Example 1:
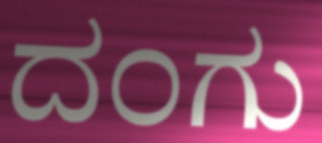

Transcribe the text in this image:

ದಂಗು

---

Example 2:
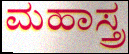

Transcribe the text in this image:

ಮಹಾಸ್ತ್ರ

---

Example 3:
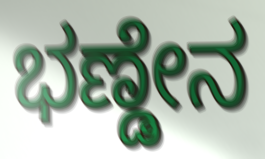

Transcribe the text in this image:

ಭಣ್ಡೇನ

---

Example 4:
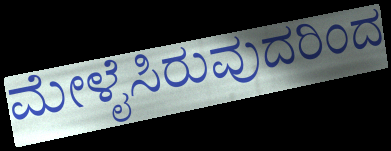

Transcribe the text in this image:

ಮೇಳೈಸಿರುವುದರಿಂದ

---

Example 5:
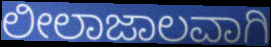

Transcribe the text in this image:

ಲೀಲಾಜಾಲವಾಗಿ